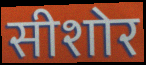
सीशोर